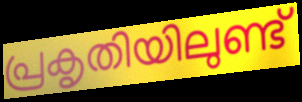
പ്രകൃതിയിലുണ്ട്